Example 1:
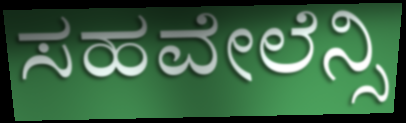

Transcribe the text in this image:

ಸಹವೇಲೆನ್ಸಿ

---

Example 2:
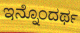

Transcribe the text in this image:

ಇನ್ನೊಂದರ್ಥ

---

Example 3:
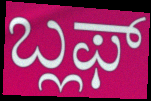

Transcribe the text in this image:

ಬ್ಲಫ್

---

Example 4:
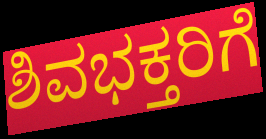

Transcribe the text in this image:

ಶಿವಭಕ್ತರಿಗೆ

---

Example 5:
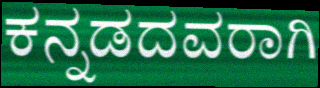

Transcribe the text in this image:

ಕನ್ನಡದವರಾಗಿ